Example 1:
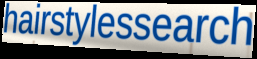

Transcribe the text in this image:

hairstylessearch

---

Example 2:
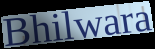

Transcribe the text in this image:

Bhilwara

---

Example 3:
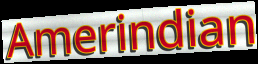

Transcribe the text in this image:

Amerindian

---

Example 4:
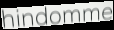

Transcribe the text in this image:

hindomme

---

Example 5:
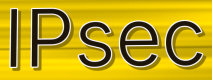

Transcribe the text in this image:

IPsec